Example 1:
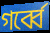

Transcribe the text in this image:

গর্ব্বে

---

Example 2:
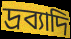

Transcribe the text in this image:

দ্রব্যাদি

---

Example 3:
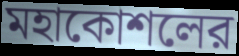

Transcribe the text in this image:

মহাকোশলের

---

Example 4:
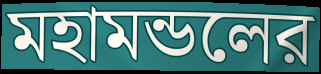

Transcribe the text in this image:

মহামন্ডলের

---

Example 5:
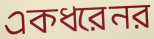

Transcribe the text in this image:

একধরেনর